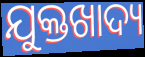
ଯୁକ୍ତଖାଦ୍ୟ